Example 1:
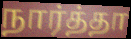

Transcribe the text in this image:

நார்த்தா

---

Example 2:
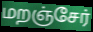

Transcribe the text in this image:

மறஞ்சேர்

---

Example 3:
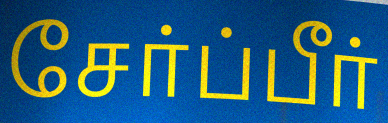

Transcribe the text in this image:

சேர்ப்பீர்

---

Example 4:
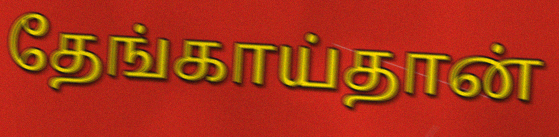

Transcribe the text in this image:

தேங்காய்தான்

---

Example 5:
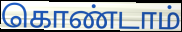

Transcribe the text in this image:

கொண்டாம்